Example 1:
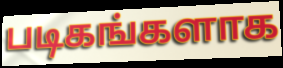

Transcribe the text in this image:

படிகங்களாக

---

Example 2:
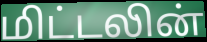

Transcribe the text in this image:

மிட்டலின்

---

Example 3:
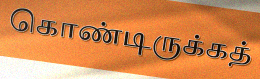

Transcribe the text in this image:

கொண்டிருக்கத்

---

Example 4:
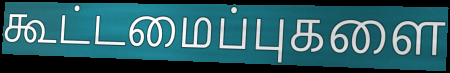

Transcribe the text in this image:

கூட்டமைப்புகளை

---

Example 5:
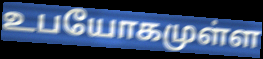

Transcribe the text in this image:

உபயோகமுள்ள